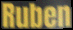
Ruben